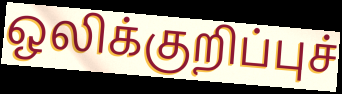
ஒலிக்குறிப்புச்